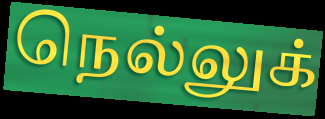
நெல்லுக்